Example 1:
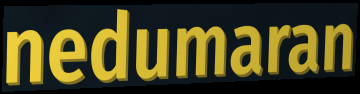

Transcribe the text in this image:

nedumaran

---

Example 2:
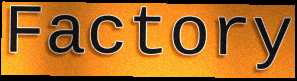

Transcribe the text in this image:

Factory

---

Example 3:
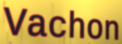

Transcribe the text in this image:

Vachon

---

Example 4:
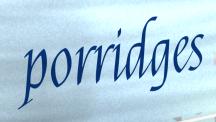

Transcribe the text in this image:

porridges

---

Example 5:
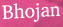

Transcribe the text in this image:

Bhojan